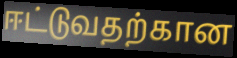
ஈட்டுவதற்கான